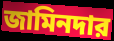
জামিনদার